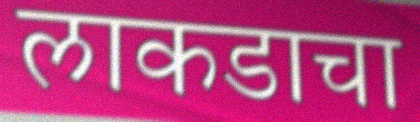
लाकडाचा